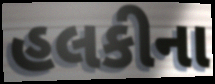
હલકીના